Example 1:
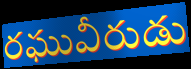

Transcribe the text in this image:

రఘువీరుడు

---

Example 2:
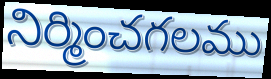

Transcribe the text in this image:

నిర్మించగలము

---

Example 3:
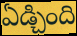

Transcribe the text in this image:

ఏడ్చింది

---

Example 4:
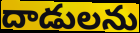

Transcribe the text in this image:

దాడులను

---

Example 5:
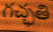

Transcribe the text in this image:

గచ్ఛతి